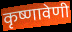
कृष्णावेणी